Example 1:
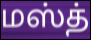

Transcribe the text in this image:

மஸ்த்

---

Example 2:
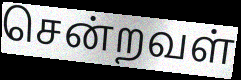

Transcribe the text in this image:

சென்றவள்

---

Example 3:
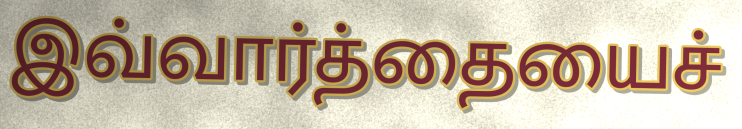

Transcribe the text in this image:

இவ்வார்த்தையைச்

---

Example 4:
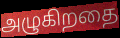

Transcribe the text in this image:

அழுகிறதை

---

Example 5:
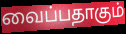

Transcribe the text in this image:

வைப்பதாகும்